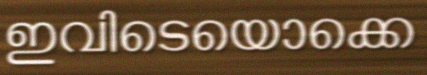
ഇവിടെയൊക്കെ